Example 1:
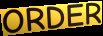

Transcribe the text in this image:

ORDER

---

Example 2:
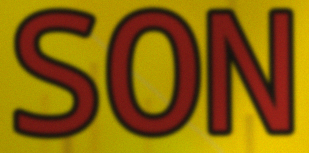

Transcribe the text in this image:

SON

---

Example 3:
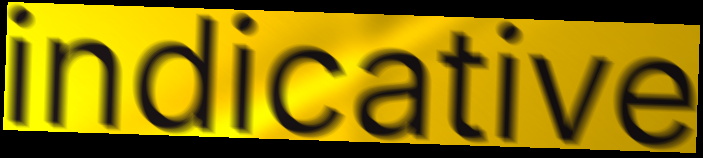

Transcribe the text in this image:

indicative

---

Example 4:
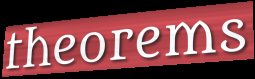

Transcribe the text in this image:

theorems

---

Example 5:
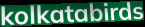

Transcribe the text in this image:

kolkatabirds